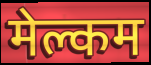
मेल्कम